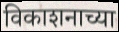
विकाशनाच्या